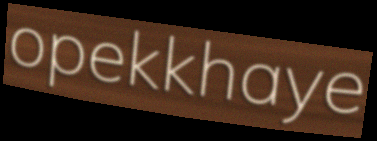
opekkhaye